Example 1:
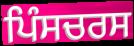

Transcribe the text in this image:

ਪਿੰਸਚਰਸ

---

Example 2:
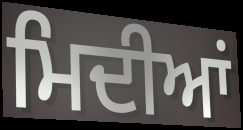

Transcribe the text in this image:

ਮਿਦੀਆਂ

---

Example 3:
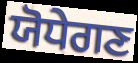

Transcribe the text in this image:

ਯੋਧੇਗਣ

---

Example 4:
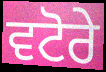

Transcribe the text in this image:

ਵਟੋਰੇ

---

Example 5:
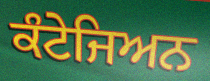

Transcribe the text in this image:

ਕੰਟੇਜਿਅਨ